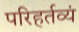
परिहर्तव्यं